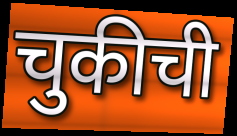
चुकीची